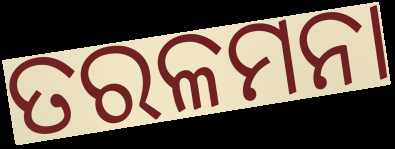
ତରଳମନା